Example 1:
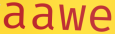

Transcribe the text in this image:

aawe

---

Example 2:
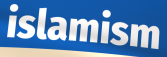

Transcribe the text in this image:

islamism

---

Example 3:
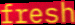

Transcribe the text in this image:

fresh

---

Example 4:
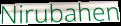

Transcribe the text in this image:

Nirubahen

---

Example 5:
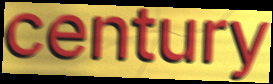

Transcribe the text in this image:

century